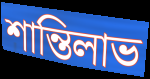
শান্তিলাভ